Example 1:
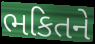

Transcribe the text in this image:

ભકિતને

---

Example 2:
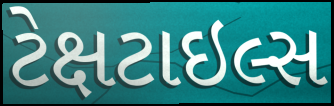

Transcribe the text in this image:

ટેક્ષટાઇલ્સ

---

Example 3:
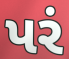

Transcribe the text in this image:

પરં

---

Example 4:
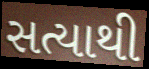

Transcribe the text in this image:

સત્યાથી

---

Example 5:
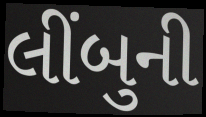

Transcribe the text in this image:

લીંબુની